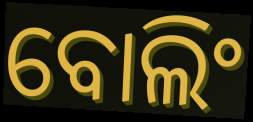
ବୋଲିଂ